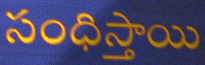
సంధిస్తాయి